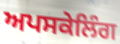
ਅਪਸਕੇਲਿੰਗ